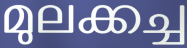
മുലക്കച്ച